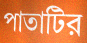
পাতাটির